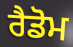
ਰੈਡੋਮ